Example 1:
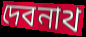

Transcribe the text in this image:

দেবনাথ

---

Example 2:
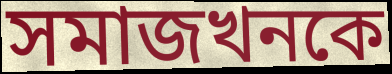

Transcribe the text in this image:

সমাজখনকে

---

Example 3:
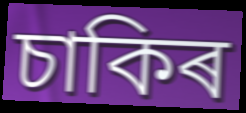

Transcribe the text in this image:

চাকিৰ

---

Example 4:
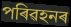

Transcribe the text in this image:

পৰিৱহনৰ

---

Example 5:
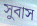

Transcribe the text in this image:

সুবাস